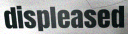
displeased